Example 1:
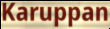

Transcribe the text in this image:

Karuppan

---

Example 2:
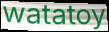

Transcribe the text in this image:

watatoy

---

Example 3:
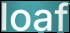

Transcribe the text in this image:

loaf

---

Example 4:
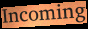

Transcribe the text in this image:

Incoming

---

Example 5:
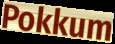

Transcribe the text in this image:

Pokkum